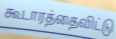
கூடாரத்தைவிட்டு